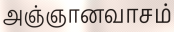
அஞ்ஞானவாசம்